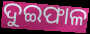
ଦୁଇଫାଳ